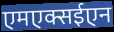
एमएक्सईएन